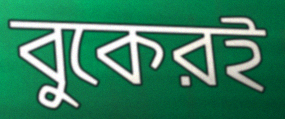
বুকেরই